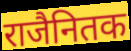
राजैनितक